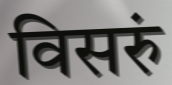
विसरुं